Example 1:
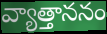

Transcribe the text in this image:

వ్యాత్తాననం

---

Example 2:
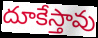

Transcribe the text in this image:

దూకేస్తావు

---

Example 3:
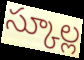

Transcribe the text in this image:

స్కూల్ల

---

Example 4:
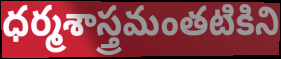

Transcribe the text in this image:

ధర్మశాస్త్రమంతటికిని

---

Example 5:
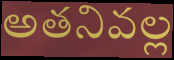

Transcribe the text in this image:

అతనివల్ల